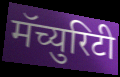
मॅच्युरिटी